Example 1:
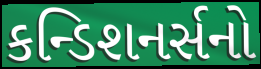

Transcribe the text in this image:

કન્ડિશનર્સનો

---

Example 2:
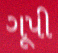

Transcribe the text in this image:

ગૂપી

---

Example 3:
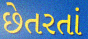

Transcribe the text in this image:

છેતરતાં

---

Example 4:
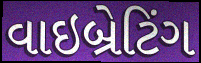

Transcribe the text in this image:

વાઇબ્રેટિંગ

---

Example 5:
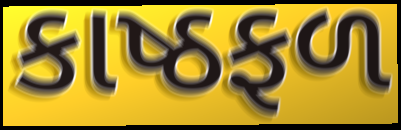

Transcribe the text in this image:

કાષ્ઠફળ